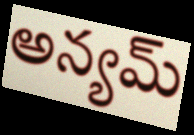
అన్యమ్